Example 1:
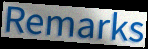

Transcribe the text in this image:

Remarks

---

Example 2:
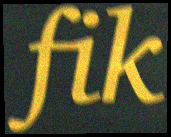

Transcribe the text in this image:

fik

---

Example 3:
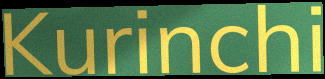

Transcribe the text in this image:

Kurinchi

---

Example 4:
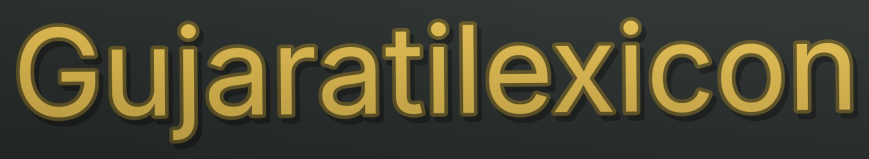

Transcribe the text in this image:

Gujaratilexicon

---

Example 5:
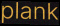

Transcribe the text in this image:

plank